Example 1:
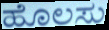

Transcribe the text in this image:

ಹೊಲಸು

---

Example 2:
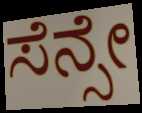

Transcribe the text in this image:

ಸೆನ್ಸೇ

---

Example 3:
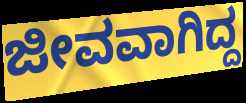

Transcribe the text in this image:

ಜೀವವಾಗಿದ್ದ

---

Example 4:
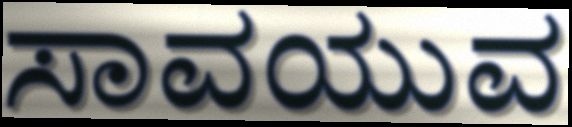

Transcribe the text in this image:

ಸಾವಯುವ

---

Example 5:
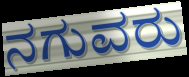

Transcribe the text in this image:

ನಗುವರು